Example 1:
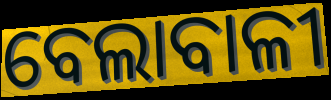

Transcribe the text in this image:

ବେଲାବାଳୀ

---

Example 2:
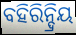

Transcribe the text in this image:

ବହିରିନ୍ଦ୍ରିୟ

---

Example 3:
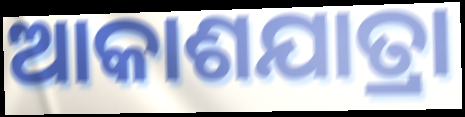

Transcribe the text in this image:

ଆକାଶଯାତ୍ରା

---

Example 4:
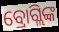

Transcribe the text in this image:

ବ୍ରୋଗ୍ଲିଙ୍କ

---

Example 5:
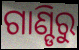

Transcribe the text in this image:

ଗାଣ୍ଡିରୁ